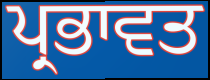
ਪ੍ਰਭਾਵਤ